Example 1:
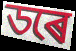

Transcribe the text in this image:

ডৰে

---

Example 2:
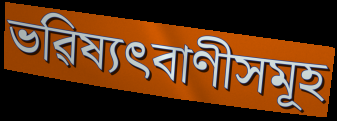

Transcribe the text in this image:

ভৱিষ্যৎবাণীসমূহ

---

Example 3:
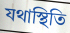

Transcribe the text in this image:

যথাস্থিতি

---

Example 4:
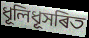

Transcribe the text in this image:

ধূলিধূসৰিত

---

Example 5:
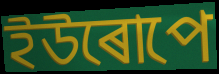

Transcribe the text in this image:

ইউৰোপে